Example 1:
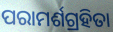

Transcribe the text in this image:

ପରାମର୍ଶଗ୍ରହିତା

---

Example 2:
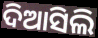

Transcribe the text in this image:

ଦିଆସିଲି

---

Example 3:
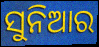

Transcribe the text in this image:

ସୁନିଆର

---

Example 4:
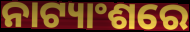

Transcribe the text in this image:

ନାଟ୍ୟାଂଶରେ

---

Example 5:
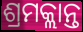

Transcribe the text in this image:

ଶ୍ରମକ୍ଲାନ୍ତ